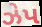
ઝેપ